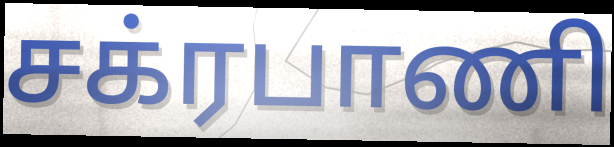
சக்ரபாணி